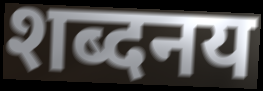
शब्दनय